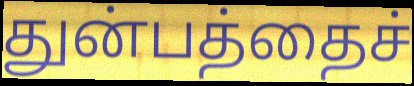
துன்பத்தைச்